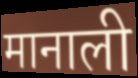
मानाली